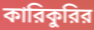
কারিকুরির